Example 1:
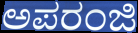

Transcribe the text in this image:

ಅಪರಂಜಿ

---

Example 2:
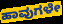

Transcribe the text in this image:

ಹಾವುಗಳೇ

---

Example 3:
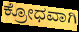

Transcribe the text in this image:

ಕ್ರೋಧವಾಗಿ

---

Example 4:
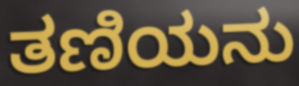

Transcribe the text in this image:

ತಣಿಯನು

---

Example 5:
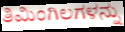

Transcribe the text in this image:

ತಿಮಿಂಗಿಲಗಳನ್ನು